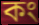
কং